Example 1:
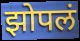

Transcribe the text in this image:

झोपलं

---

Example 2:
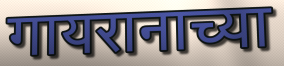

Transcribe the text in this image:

गायरानाच्या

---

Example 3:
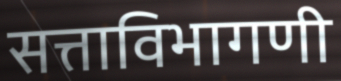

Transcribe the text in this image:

सत्ताविभागणी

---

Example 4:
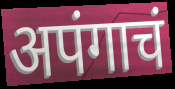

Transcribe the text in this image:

अपंगाचं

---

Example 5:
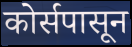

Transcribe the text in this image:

कोर्सपासून